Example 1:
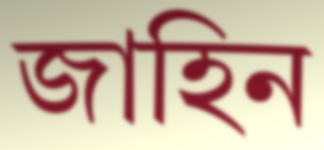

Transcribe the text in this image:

জাহিন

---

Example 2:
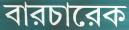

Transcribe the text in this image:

বারচারেক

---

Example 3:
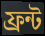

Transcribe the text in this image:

ফ্রন্ট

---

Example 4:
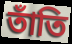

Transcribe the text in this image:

তাঁতি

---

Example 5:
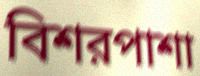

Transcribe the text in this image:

বিশরপাশা